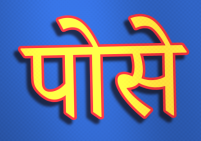
पोसे